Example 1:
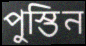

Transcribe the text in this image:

পুস্তিন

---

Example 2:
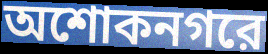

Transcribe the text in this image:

অশোকনগরে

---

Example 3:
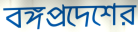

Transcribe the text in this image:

বঙ্গপ্রদেশের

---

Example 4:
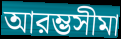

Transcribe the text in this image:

আরম্ভসীমা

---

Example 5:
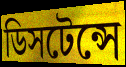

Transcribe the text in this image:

ডিসটেন্সে